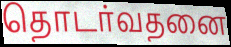
தொடர்வதனை